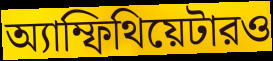
অ্যাম্ফিথিয়েটারও